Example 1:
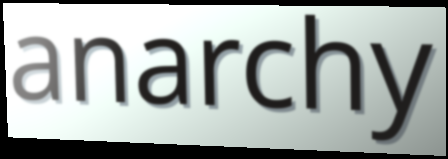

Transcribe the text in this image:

anarchy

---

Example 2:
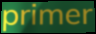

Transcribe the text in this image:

primer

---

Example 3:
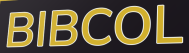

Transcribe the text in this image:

BIBCOL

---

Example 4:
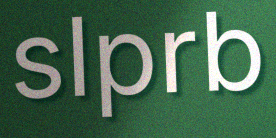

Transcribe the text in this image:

slprb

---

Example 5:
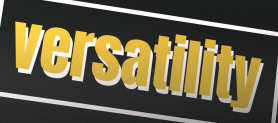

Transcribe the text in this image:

versatility